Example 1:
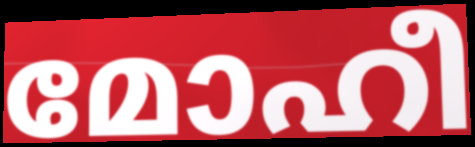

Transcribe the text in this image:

മോഹീ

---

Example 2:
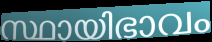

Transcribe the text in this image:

സ്ഥായിഭാവം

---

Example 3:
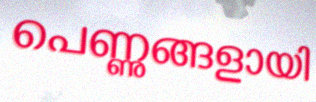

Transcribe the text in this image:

പെണ്ണുങ്ങളായി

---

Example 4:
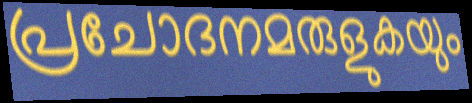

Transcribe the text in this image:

പ്രചോദനമരുളുകയും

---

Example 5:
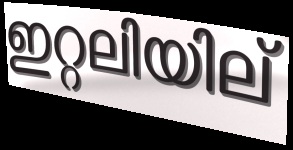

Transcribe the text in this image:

ഇറ്റലിയില്